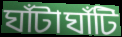
ঘাঁটাঘাঁটি